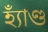
হ্যাঁণ্ড